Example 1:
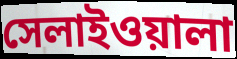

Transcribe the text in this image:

সেলাইওয়ালা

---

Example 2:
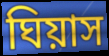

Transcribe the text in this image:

ঘিয়াস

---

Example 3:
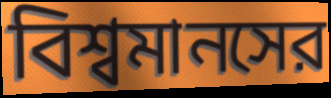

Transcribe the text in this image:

বিশ্বমানসের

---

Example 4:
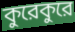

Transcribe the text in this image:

কুরেকুরে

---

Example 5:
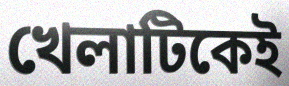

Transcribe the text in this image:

খেলাটিকেই